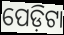
ପେଡ଼ିଟା